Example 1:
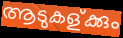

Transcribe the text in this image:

ആടുകള്ക്കും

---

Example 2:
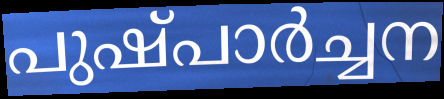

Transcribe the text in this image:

പുഷ്പാർച്ചന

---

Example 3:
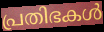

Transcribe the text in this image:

പ്രതിഭകൾ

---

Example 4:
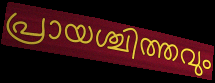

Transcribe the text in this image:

പ്രായശ്ചിത്തവും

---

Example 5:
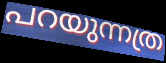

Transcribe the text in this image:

പറയുന്നത്ര